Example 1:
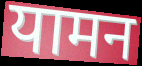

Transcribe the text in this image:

यामन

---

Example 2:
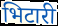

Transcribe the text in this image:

भिटारी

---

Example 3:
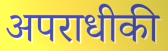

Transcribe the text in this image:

अपराधीकी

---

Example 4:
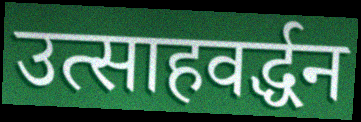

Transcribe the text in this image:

उत्साहवर्द्धन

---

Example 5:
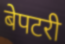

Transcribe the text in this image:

बेपटरी